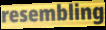
resembling